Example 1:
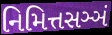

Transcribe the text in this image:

નિમિત્તસઞ્ઞં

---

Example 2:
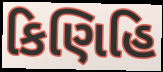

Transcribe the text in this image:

કિણિહિ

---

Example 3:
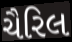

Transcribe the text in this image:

ચૈરિલ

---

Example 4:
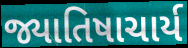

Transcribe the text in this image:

જ્યાતિષાચાર્ય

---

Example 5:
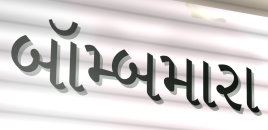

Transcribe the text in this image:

બૉમ્બમારા